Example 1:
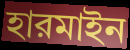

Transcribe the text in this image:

হারমাইন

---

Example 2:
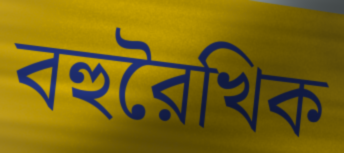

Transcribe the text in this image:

বহুরৈখিক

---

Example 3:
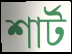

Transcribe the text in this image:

শার্ট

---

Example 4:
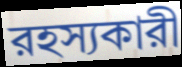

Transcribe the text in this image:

রহস্যকারী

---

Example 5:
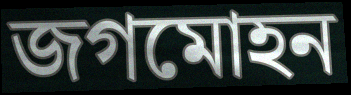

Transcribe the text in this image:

জগমোহন